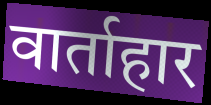
वार्ताहार